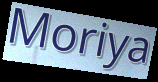
Moriya